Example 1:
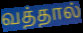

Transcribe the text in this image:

வத்தால்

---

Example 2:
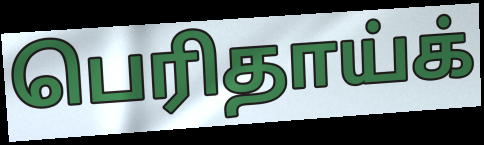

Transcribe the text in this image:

பெரிதாய்க்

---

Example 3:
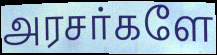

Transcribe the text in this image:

அரசர்களே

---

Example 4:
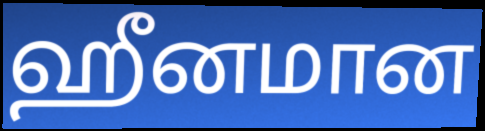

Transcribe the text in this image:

ஹீனமான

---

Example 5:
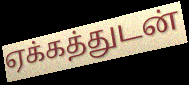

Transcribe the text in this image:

ஏக்கத்துடன்